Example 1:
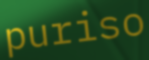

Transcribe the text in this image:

puriso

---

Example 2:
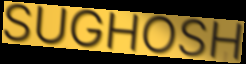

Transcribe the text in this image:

SUGHOSH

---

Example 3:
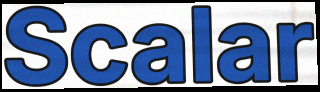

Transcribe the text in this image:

Scalar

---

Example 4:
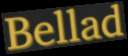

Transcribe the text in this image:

Bellad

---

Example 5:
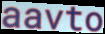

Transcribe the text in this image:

aavto